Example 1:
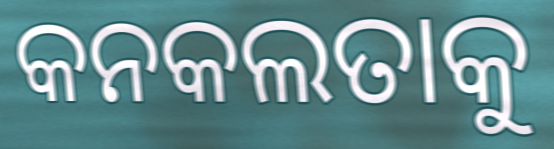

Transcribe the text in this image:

କନକଲତାକୁ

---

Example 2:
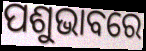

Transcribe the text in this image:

ପଶୁଭାବରେ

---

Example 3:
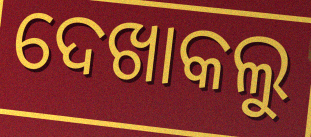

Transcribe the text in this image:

ଦେଖାକଲୁ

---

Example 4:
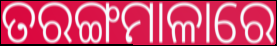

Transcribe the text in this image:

ତରଙ୍ଗମାଳାରେ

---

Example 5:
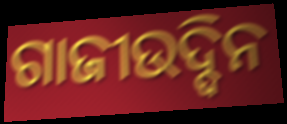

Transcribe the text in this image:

ଗାଜୀଉଦ୍ଦିନ